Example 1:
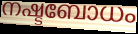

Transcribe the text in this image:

നഷ്ടബോധം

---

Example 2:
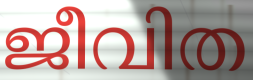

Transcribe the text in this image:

ജീവിത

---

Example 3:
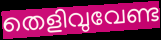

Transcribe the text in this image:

തെളിവുവേണ്ട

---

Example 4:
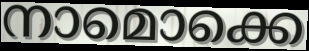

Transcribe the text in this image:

നാമൊക്കെ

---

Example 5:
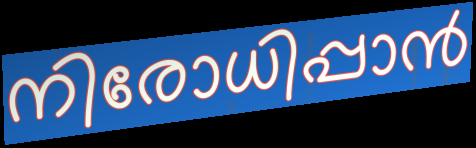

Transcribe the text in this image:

നിരോധിപ്പാൻ